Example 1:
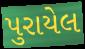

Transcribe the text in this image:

પુરાયેલ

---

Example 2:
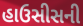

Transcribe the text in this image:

હાઉસીસની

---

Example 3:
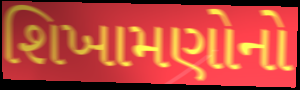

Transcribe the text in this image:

શિખામણોનો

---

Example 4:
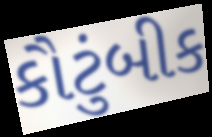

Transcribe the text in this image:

કૌટુંબીક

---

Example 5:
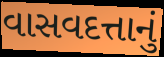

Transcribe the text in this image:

વાસવદત્તાનું